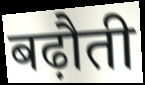
बढ़ौती